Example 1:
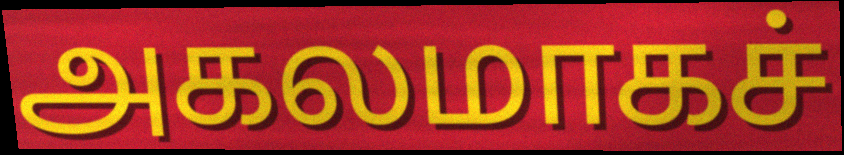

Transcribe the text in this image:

அகலமாகச்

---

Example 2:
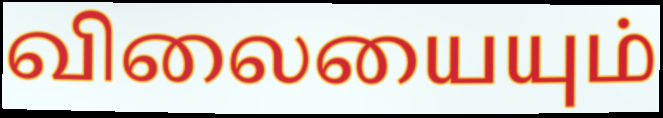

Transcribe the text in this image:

விலையையும்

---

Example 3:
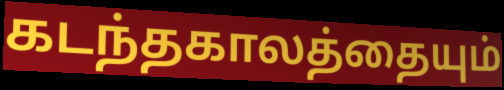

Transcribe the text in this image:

கடந்தகாலத்தையும்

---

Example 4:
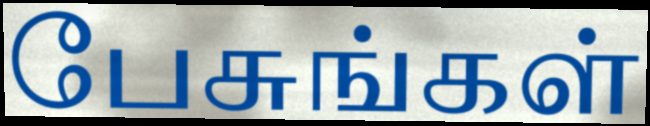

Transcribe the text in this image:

பேசுங்கள்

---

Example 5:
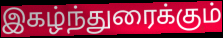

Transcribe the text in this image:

இகழ்ந்துரைக்கும்